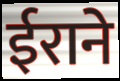
ईराने